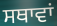
ਸਥਾਵਾਂ